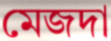
মেজদা